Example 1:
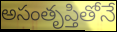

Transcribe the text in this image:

అసంతృప్తితోనే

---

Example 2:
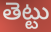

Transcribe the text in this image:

తెట్టు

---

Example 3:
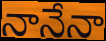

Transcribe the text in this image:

నానేనా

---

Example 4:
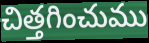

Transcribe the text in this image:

చిత్తగించుము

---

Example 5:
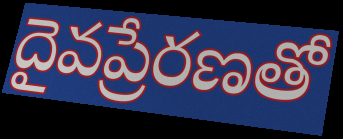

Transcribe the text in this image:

దైవప్రేరణతో